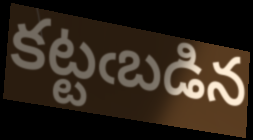
కట్టఁబడిన